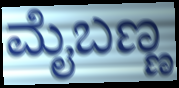
ಮೈಬಣ್ಣ